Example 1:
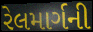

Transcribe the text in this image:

રેલમાર્ગની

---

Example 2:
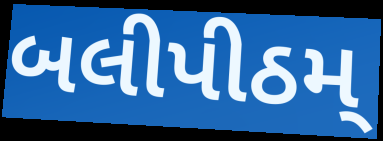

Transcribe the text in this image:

બલીપીઠમ્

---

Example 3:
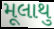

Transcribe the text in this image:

મૂલાથુ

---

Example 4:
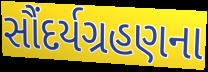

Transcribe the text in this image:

સૌંદર્યગ્રહણના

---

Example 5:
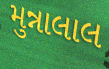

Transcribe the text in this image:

મુન્નાલાલ